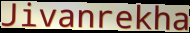
Jivanrekha